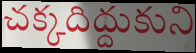
చక్కదిద్దుకుని